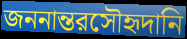
জননান্তরসৌহৃদানি